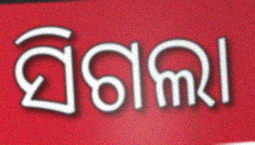
ସିଗଲା